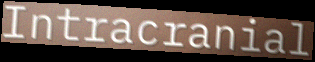
Intracranial